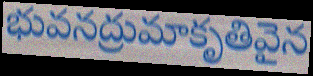
భువనద్రుమాకృతివైన